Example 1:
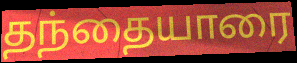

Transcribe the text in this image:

தந்தையாரை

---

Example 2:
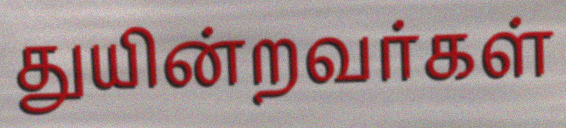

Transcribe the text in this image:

துயின்றவர்கள்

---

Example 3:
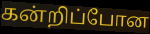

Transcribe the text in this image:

கன்றிப்போன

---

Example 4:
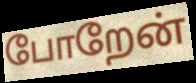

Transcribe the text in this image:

போறேன்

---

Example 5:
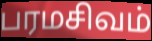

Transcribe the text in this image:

பரமசிவம்